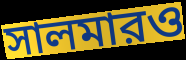
সালমারও